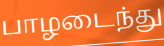
பாழடைந்து